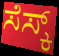
ಸೆಸ್ಕ್